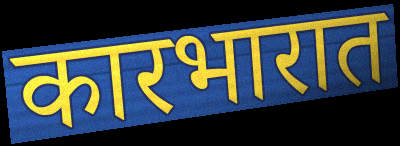
कारभारात